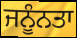
ਜਨੂੰਨਤਾ